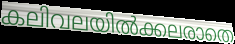
കലിവലയിൽക്കലരാതെ